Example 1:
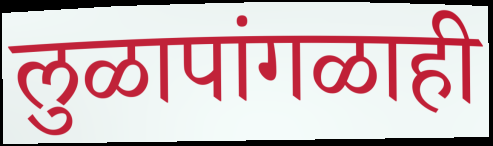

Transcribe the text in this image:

लुळापांगळाही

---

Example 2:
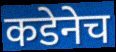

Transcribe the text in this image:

कडेनेच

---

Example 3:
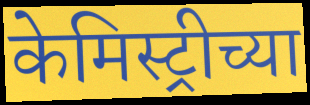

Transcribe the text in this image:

केमिस्ट्रीच्या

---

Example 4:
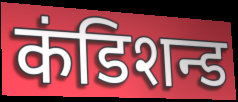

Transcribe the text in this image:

कंडिशन्ड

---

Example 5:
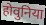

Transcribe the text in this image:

होवुनिया